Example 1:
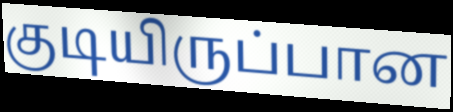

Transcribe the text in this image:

குடியிருப்பான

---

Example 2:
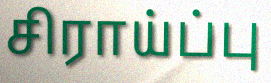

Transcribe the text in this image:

சிராய்ப்பு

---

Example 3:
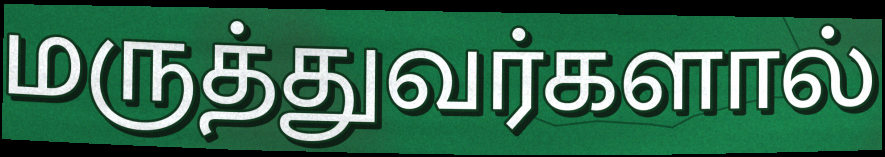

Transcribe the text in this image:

மருத்துவர்களால்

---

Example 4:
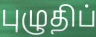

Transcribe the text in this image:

புழுதிப்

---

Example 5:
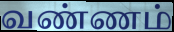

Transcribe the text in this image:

வண்ணம்